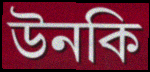
উনকি